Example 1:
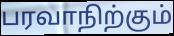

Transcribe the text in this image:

பரவாநிற்கும்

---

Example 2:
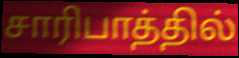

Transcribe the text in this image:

சாரிபாத்தில்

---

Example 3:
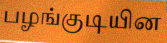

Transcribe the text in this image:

பழங்குடியின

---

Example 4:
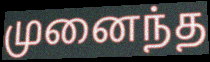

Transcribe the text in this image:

முனைந்த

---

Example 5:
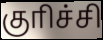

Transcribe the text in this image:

குரிச்சி